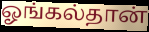
ஓங்கல்தான்